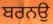
ਬਰਨਉ